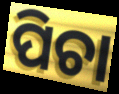
ପିଚା